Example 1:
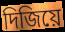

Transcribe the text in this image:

দিজিয়ে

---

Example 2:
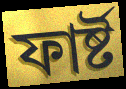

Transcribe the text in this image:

ফার্ষ্ট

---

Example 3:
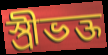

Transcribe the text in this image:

স্ত্রীভক্ত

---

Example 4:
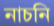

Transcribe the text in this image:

নাচনি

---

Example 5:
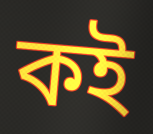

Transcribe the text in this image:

কই